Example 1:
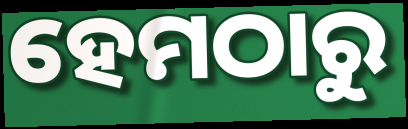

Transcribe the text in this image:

ହେମଠାରୁ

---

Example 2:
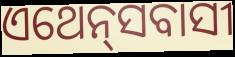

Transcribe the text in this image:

ଏଥେନ୍‌ସବାସୀ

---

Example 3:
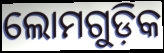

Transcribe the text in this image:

ଲୋମଗୁଡ଼ିକ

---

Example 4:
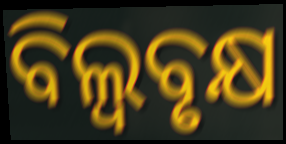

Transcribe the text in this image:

ବିଲ୍ୱବୃକ୍ଷ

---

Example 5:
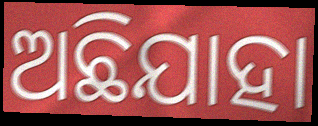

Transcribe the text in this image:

ଅଛିଯାହା